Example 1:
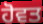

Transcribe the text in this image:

ਹੋਵਤ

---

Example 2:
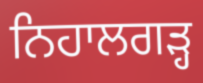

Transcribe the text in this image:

ਨਿਹਾਲਗੜ੍ਹ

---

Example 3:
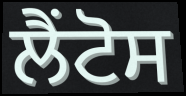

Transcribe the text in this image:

ਲੈਂਟੋਸ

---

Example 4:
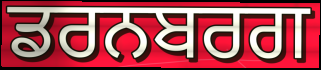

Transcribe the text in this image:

ਡਰਨਬਰਗ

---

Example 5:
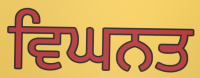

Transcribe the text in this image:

ਵਿਘਨਤ